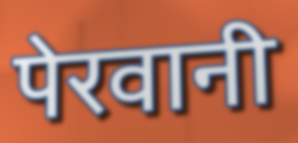
पेरवानी